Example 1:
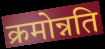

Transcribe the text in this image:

क्रमोन्नति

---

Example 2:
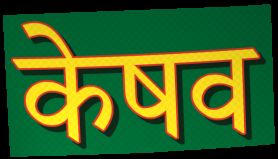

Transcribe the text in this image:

केषव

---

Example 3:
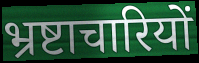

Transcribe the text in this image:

भ्रष्टाचारियों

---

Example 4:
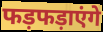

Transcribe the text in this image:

फड़फड़ाएंगे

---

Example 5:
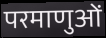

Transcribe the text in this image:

परमाणुओं